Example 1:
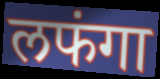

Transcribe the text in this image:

लफंगा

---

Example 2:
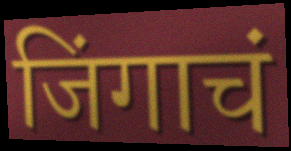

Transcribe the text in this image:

जिंगाचं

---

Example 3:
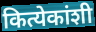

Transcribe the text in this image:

कित्येकांशी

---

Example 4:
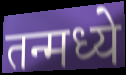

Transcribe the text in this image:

तन्मध्ये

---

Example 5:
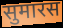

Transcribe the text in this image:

सुमारस